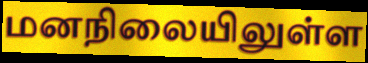
மனநிலையிலுள்ள